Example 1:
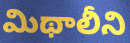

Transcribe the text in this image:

మిథాలీని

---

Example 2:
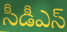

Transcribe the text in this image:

సీడీఎస్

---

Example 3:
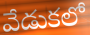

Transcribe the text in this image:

వేడుకలో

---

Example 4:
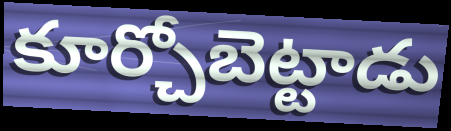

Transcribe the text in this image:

కూర్చోబెట్టాడు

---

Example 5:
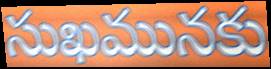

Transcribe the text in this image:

సుఖమునకు